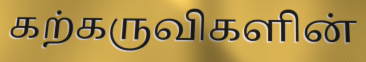
கற்கருவிகளின்